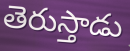
తెరుస్తాడు